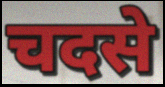
चदसे